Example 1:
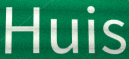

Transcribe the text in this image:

Huis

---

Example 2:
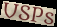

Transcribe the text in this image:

USPs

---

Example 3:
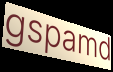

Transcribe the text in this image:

gspamd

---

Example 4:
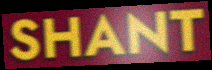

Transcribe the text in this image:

SHANT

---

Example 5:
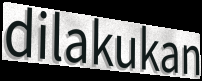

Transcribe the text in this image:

dilakukan